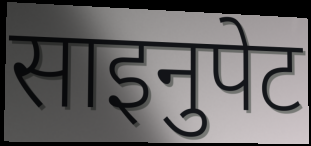
साइनुपेट